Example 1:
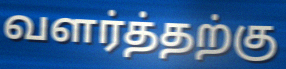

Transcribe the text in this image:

வளர்த்தற்கு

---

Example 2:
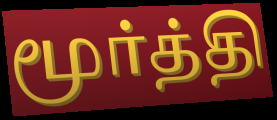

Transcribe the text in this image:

மூர்த்தி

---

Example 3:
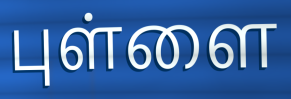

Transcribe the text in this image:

புள்ளை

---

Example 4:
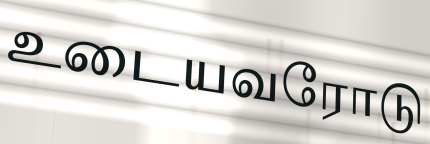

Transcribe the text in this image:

உடையவரோடு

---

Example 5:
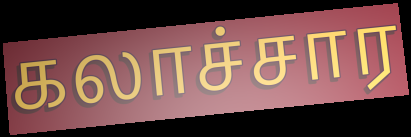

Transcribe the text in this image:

கலாச்சார